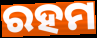
ରହମ